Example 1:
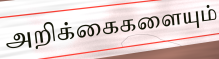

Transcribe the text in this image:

அறிக்கைகளையும்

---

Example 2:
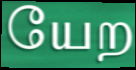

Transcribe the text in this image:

யேற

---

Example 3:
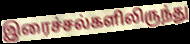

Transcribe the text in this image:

இரைச்சல்களிலிருந்து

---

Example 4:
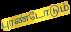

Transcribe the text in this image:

புரண்டோடும்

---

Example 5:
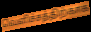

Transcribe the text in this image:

வெளிச்சத்திற்காக